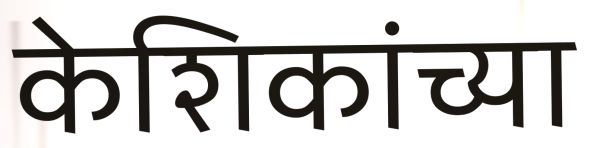
केशिकांच्या